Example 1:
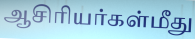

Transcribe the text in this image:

ஆசிரியர்கள்மீது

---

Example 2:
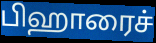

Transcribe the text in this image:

பிஹாரைச்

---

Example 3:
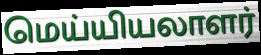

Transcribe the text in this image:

மெய்யியலாளர்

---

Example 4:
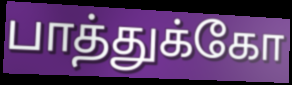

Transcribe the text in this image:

பாத்துக்கோ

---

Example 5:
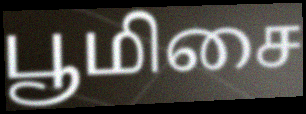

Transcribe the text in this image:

பூமிசை